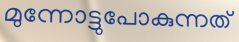
മുന്നോട്ടുപോകുന്നത്